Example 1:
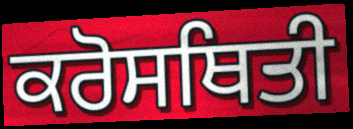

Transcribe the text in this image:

ਕਰੋਸਥਿਤੀ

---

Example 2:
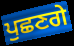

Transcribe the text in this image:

ਪੁਛਣਗੇ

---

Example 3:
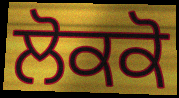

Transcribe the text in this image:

ਲੋਕਕੋ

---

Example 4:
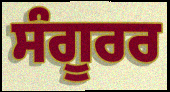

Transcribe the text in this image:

ਸੰਗੂਰਰ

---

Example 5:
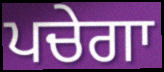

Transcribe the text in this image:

ਪਚੇਗਾ